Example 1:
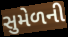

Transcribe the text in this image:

સુમેળની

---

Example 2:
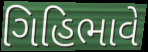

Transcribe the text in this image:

ગિહિભાવે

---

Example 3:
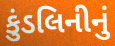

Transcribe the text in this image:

કુંડલિનીનું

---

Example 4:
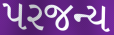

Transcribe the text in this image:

પરજન્ય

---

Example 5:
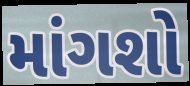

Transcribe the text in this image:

માંગશો